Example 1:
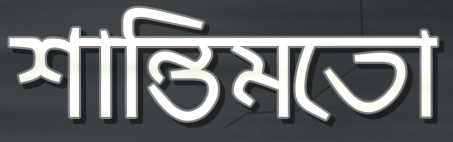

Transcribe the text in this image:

শান্তিমতো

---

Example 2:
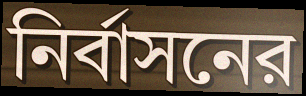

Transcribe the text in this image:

নির্বাসনের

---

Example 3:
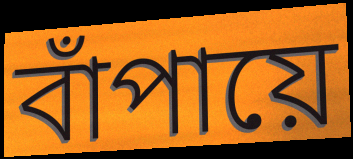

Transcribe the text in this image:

বাঁপায়ে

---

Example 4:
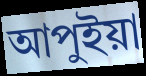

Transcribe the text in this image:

আপুইয়া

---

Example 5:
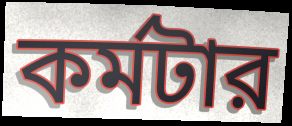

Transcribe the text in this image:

কর্মটার